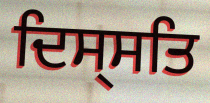
ਦਿਸ੍ਸਤਿ